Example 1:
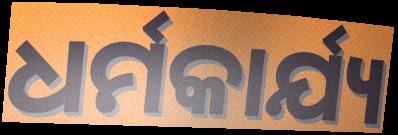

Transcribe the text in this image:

ଧର୍ମକାର୍ଯ୍ୟ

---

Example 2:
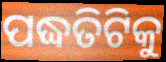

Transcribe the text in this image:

ପଦ୍ଧତିଟିକୁ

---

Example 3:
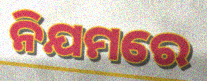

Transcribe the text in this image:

ନିଯମରେ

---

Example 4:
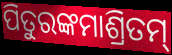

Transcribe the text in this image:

ପିତୁରଙ୍କମାଶ୍ରିତମ୍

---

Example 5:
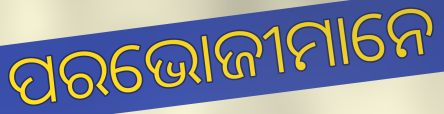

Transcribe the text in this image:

ପରଭୋଜୀମାନେ